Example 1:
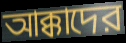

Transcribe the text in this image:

আক্কাদের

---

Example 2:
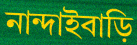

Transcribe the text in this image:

নান্দাইবাড়ি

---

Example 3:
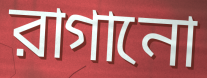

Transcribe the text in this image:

রাগানো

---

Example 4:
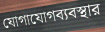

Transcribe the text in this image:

যোগাযোগব্যবস্থার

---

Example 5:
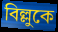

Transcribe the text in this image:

বিল্লুকে